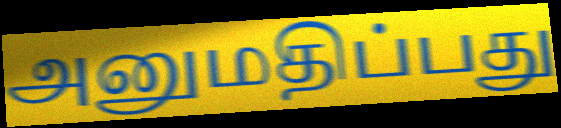
அனுமதிப்பது